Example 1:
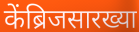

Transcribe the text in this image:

केंब्रिजसारख्या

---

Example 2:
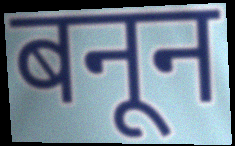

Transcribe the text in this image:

बनून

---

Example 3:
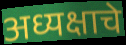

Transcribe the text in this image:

अध्यक्षाचे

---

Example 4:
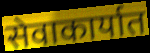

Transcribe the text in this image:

सेवाकार्यात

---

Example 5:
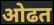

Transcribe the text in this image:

ओढत